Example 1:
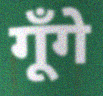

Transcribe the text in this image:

गूँगे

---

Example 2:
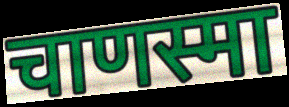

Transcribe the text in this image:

चाणस्मा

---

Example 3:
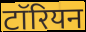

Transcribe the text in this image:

टॉरियन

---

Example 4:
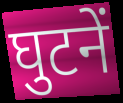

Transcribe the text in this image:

घुटनें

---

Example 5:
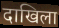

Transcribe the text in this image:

दाखिला